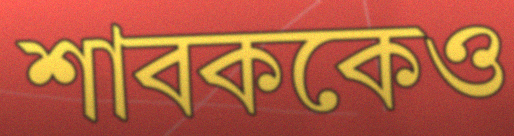
শাবককেও